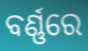
ବର୍ଣ୍ଣରେ